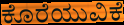
ಕೊರೆಯುವಿಕೆ